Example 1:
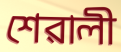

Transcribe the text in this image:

শেৱালী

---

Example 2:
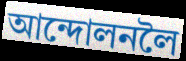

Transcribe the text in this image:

আন্দোলনলৈ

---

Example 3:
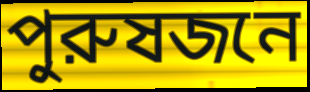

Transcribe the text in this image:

পুৰুষজনে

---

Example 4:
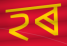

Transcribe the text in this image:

হৰ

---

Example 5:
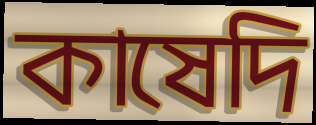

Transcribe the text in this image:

কাষেদি